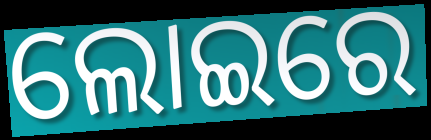
ଲୋଇରେ